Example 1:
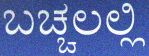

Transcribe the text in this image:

ಬಚ್ಚಲಲ್ಲಿ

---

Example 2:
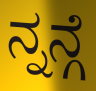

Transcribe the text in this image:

ನ್ನನ್ಗೆ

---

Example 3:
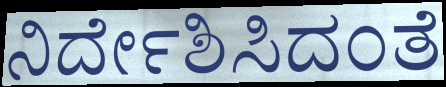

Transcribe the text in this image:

ನಿರ್ದೇಶಿಸಿದಂತೆ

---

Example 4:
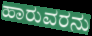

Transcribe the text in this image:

ಹಾರುವರನು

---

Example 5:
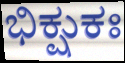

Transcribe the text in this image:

ಭಿಕ್ಷುಕಃ